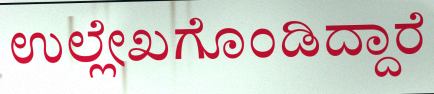
ಉಲ್ಲೇಖಗೊಂಡಿದ್ದಾರೆ